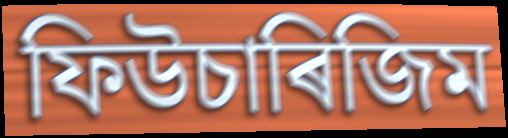
ফিউচাৰিজিম